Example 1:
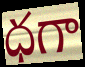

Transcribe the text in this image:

ధగా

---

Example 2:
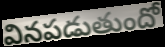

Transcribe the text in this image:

వినపడుతుందో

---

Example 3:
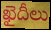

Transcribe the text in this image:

ఖైదీలు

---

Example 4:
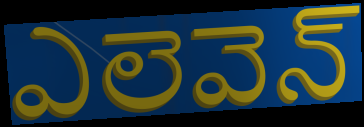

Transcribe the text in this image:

ఎలెవెన్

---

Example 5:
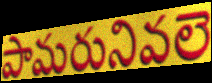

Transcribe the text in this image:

పామరునివలె